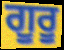
ਗੂਰੂ